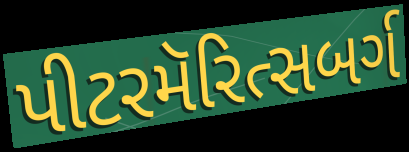
પીટરમૅરિત્સબર્ગ